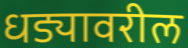
धड्यावरील